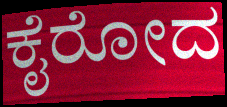
ಕೈರೋದ